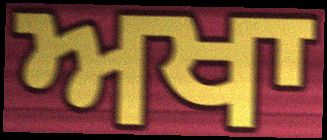
ਅਖਾ